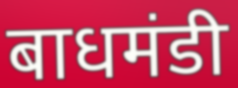
बाधमंडी